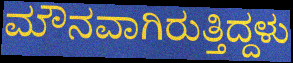
ಮೌನವಾಗಿರುತ್ತಿದ್ದಳು